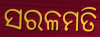
ସରଳମତି